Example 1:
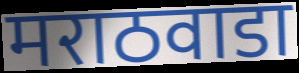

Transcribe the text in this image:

मराठवाडा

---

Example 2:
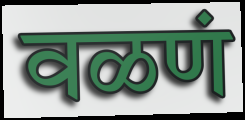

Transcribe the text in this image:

वळणं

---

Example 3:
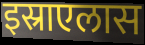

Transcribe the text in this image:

इस्राएलास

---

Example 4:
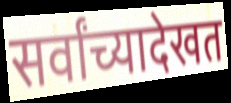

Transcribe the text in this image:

सर्वांच्यादेखत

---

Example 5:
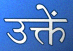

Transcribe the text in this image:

उक्तें